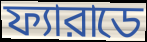
ফ্যারাডে